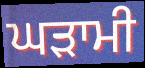
ਘੜਾਮੀ